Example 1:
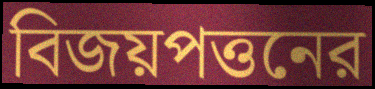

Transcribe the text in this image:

বিজয়পত্তনের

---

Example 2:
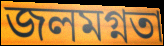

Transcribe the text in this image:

জলমগ্নতা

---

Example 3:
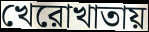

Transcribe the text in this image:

খেরোখাতায়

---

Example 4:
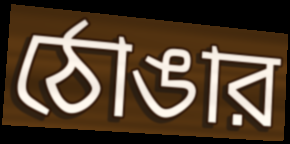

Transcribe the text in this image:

ঠোঙার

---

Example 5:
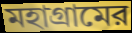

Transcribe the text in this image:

মহাগ্রামের